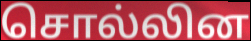
சொல்லின